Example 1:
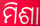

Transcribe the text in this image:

ମିଶା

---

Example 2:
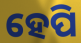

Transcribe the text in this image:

ହେପି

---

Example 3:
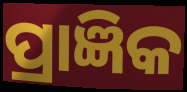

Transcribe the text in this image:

ପ୍ରାଜ୍ଞିକ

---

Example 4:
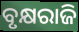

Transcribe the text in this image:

ବୃକ୍ଷରାଜି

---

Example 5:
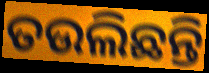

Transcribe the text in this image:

ତଉଲିଛନ୍ତି